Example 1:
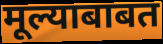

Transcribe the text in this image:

मूल्याबाबत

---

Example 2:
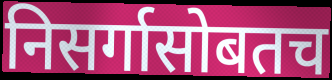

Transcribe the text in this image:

निसर्गासोबतच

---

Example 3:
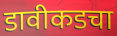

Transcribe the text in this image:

डावीकडचा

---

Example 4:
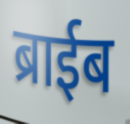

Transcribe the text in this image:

ब्राईब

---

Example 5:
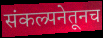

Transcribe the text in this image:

संकल्पनेतूनच